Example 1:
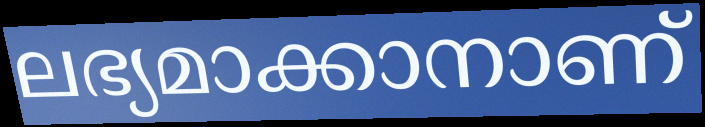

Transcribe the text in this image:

ലഭ്യമാക്കാനാണ്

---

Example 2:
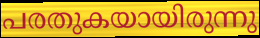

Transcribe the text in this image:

പരതുകയായിരുന്നു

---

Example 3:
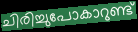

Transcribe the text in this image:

ചിരിച്ചുപോകാറുണ്ട്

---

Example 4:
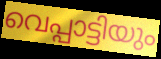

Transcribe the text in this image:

വെപ്പാട്ടിയും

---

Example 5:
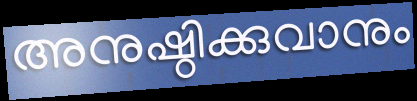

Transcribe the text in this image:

അനുഷ്ഠിക്കുവാനും